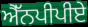
ਐੱਨਪੀਪੀਏ